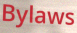
Bylaws